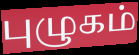
புழுகம்